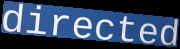
directed